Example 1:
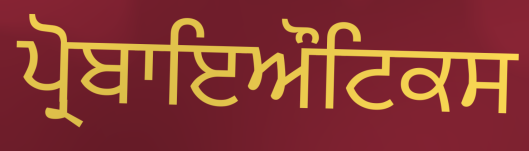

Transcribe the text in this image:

ਪ੍ਰੋਬਾਇਔਟਿਕਸ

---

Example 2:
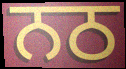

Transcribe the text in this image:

ਨਠ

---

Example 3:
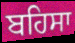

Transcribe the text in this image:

ਬਹਿਸਾ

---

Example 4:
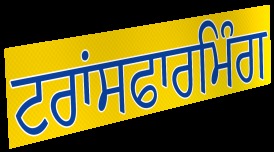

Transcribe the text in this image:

ਟਰਾਂਸਫਾਰਮਿੰਗ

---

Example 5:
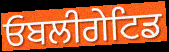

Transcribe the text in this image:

ਓਬਲੀਗੇਟਿਡ